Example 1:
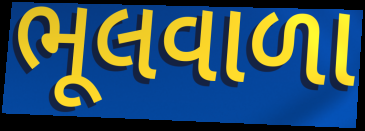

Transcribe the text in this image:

ભૂલવાળા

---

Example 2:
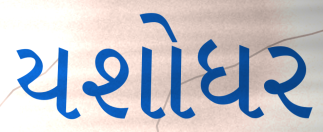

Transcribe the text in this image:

યશોધર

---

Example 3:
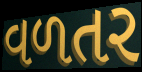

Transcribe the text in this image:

વળતર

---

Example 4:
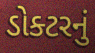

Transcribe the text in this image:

ડોક્ટરનું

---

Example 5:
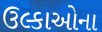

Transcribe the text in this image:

ઉલ્કાઓના